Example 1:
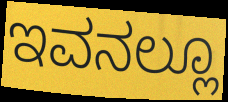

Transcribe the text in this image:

ಇವನಲ್ಲೂ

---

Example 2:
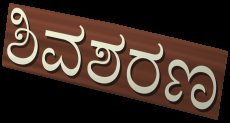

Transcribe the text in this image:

ಶಿವಶರಣ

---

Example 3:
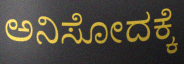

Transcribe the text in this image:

ಅನಿಸೋದಕ್ಕೆ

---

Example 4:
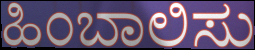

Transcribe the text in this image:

ಹಿಂಬಾಲಿಸು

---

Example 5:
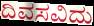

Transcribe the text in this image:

ದಿವಸವಿದು